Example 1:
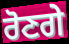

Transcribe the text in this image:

ਰੋਣਗੇ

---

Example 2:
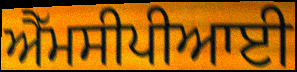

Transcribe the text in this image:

ਐੱਮਸੀਪੀਆਈ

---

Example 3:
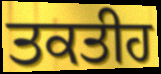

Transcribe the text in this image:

ਤਕਤੀਹ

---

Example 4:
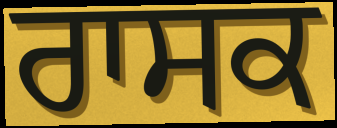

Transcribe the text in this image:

ਰਾਸਕ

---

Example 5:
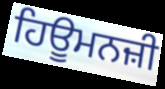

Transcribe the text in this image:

ਹਿਊਮਨਜ਼ੀ